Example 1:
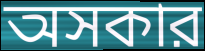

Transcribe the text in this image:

অসকার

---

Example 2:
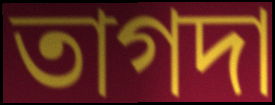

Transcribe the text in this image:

তাগদা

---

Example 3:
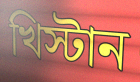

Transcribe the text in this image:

খিস্টান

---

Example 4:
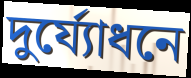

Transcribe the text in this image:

দুর্য্যোধনে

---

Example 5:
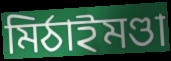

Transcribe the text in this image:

মিঠাইমণ্ডা